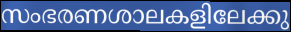
സംഭരണശാലകളിലേക്കു